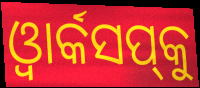
ଓ୍ୱାର୍କସପ୍‌କୁ